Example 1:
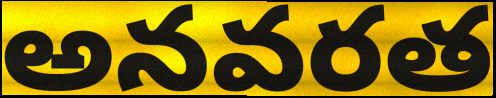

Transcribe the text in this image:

అనవరత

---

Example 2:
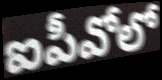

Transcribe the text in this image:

ఐపీవోలో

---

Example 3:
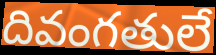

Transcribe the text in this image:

దివంగతులే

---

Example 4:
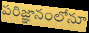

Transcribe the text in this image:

పరిజ్ఞానంలోనూ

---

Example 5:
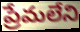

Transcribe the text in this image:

ప్రేమలేని